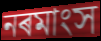
নৰমাংস